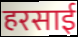
हरसाई